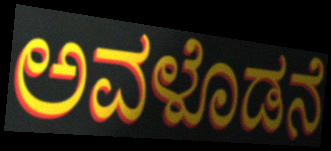
ಅವಳೊಡನೆ